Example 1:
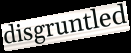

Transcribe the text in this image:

disgruntled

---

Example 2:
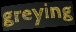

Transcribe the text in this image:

greying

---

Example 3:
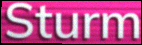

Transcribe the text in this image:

Sturm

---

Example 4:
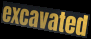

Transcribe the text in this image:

excavated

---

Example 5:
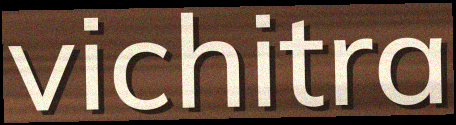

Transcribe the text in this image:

vichitra